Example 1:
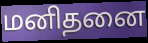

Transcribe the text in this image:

மனிதனை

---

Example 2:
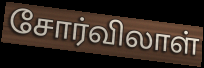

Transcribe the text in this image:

சோர்விலாள்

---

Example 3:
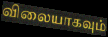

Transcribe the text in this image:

விலையாகவும்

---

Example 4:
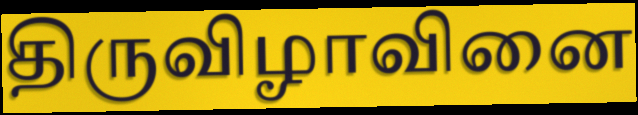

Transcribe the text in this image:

திருவிழாவினை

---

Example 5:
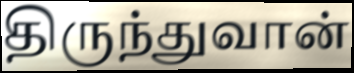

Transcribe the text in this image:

திருந்துவான்